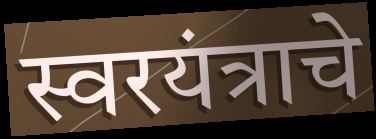
स्वरयंत्राचे